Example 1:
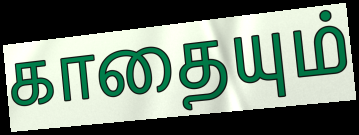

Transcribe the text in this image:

காதையும்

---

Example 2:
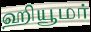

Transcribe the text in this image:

ஹியூமர்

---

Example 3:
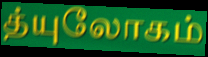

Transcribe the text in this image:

த்யுலோகம்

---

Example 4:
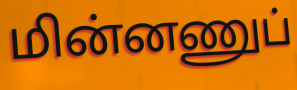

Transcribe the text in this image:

மின்னணுப்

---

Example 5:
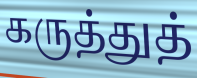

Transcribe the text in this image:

கருத்துத்